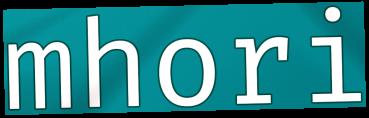
mhori